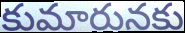
కుమారునకు